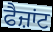
ਫੈਜ਼ਾਂਟ